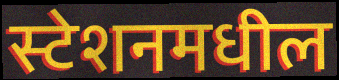
स्टेशनमधील